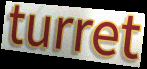
turret